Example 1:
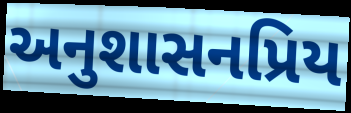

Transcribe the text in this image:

અનુશાસનપ્રિય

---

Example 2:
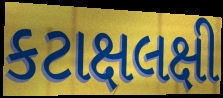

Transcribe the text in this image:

કટાક્ષલક્ષી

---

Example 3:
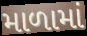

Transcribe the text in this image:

માળામાં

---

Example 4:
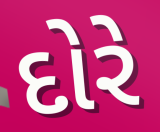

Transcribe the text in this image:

દોરે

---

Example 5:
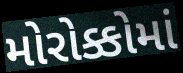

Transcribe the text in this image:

મોરોક્કોમાં